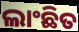
ଲାଂଛିତ